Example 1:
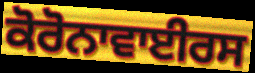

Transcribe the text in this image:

ਕੋਰੋਨਾਵਾਈਰਸ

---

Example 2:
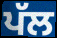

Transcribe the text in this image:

ਪੱਲ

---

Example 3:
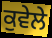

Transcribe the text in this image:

ਕੁਵੇਲੇ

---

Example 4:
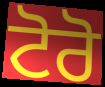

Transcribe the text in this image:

ਟੋਰੋ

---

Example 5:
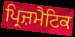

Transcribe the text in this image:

ਪ੍ਰਿਜ਼ਮੈਟਿਕ